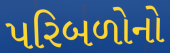
પરિબળોનો